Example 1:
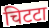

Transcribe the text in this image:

चिटटा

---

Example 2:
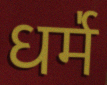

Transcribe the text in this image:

धर्म॑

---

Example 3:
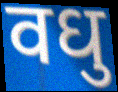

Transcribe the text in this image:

वधु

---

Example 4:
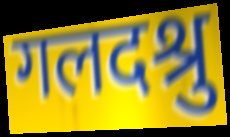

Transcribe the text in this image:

गलदश्रु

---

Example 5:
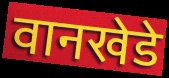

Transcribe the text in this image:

वानखेडे